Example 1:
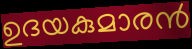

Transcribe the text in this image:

ഉദയകുമാരൻ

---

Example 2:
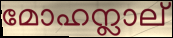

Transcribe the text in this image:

മോഹന്ലാല്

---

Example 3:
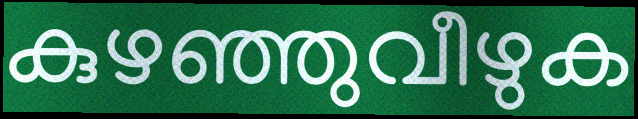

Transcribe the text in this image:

കുഴഞ്ഞുവീഴുക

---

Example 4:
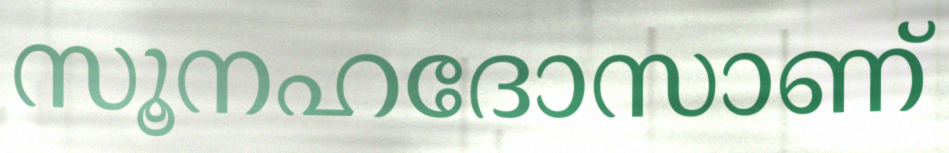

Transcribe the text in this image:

സൂനഹദോസാണ്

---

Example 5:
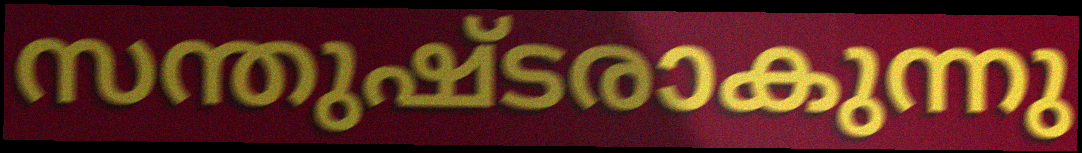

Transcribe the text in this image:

സന്തുഷ്ടരാകുന്നു